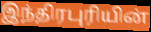
இந்திரபுரியின்